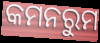
କମନରୁମ